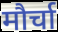
मौर्चा